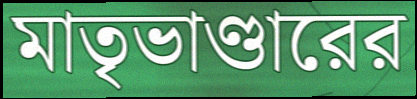
মাতৃভাণ্ডারের